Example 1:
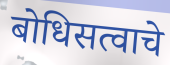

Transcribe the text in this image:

बोधिसत्वाचे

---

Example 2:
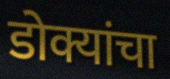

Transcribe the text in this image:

डोक्यांचा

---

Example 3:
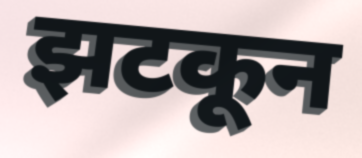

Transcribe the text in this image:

झटकून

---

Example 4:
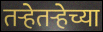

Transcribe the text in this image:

तर्‍हेतर्‍हेच्या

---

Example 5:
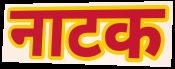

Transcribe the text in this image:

नाटक